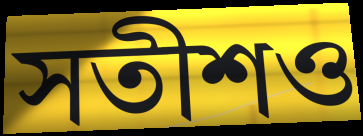
সতীশও